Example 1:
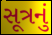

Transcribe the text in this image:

સૂત્રનું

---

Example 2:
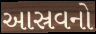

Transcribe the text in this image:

આસ્રવનો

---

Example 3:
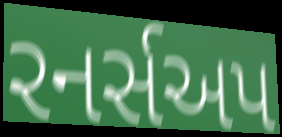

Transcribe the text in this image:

રનર્સઅપ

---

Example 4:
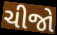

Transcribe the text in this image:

ચીજો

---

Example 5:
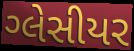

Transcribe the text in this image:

ગ્લેસીયર